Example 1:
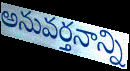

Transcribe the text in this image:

అనువర్తనాన్ని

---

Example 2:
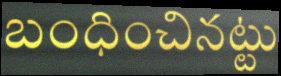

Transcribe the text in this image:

బంధించినట్టు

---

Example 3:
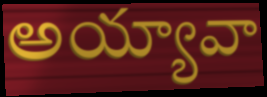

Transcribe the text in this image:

అయ్యావా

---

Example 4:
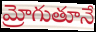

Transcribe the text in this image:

మ్రోగుతూనే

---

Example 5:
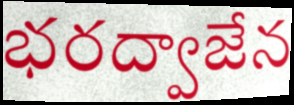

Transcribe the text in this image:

భరద్వాజేన